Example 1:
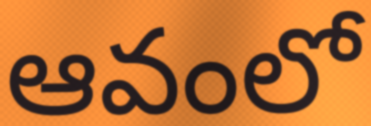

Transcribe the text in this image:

ఆవంలో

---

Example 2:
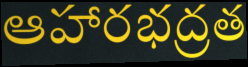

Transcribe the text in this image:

ఆహారభద్రత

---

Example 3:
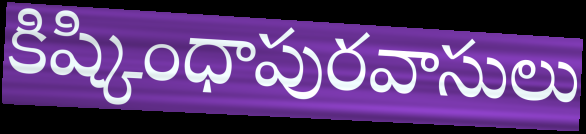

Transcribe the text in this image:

కిష్కింధాపురవాసులు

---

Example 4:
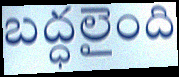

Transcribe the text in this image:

బద్ధలైంది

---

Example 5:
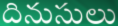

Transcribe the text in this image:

దినుసులు